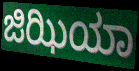
ಜಿಝಿಯಾ